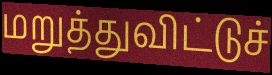
மறுத்துவிட்டுச்